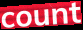
count